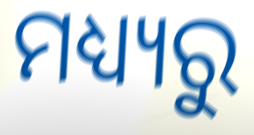
ମଧ୍ୟ୍ୟରୁ